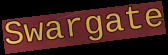
Swargate